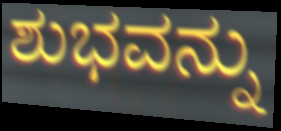
ಶುಭವನ್ನು